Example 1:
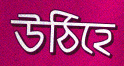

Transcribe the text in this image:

উঠিহে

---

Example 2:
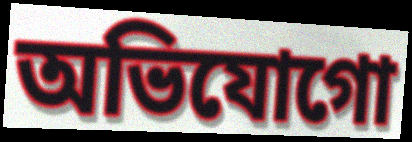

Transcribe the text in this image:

অভিযোগো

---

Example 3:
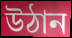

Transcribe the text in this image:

উঠান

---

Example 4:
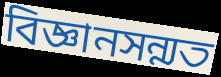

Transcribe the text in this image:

বিজ্ঞানসন্মত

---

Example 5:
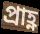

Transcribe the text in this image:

প্ৰাহ্ণ